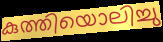
കുത്തിയൊലിച്ചു